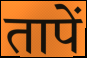
तापें